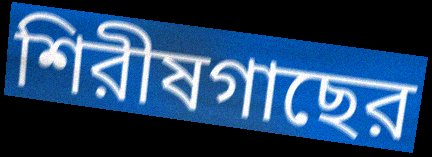
শিরীষগাছের